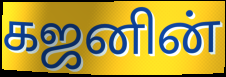
கஜனின்